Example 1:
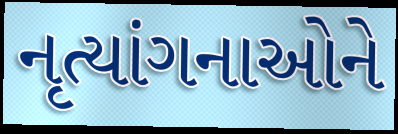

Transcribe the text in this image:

નૃત્યાંગનાઓને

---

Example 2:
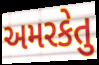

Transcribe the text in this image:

અમરકેતુ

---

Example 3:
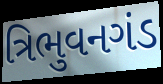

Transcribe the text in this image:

ત્રિભુવનગંડ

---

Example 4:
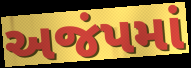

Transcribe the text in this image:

અજંપમાં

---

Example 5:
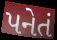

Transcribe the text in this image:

પનેતં